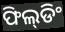
ଫିଲ୍‌ଡିଂ